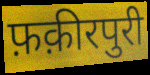
फ़क़ीरपुरी